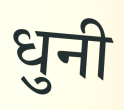
धुनी